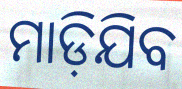
ମାଡ଼ିଯିବ